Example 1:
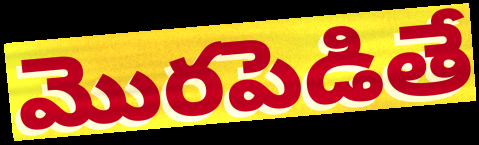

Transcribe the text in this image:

మొరపెడితే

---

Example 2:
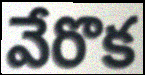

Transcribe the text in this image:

వేరొక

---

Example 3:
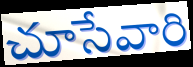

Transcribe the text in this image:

చూసేవారి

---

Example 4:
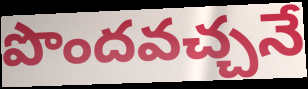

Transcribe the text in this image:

పొందవచ్చనే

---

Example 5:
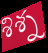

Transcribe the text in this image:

శిశ్న